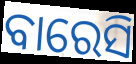
ବାରେସି